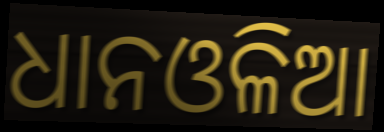
ଧାନଓଳିଆ